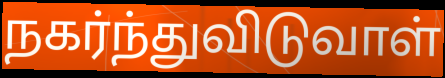
நகர்ந்துவிடுவாள்